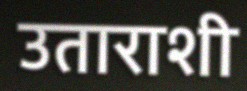
उताराशी